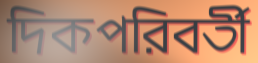
দিকপরিবর্তী